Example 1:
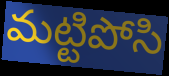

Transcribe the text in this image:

మట్టిపోసి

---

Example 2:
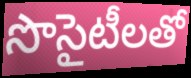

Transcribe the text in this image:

సొసైటీలతో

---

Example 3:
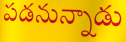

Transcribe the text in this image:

పడనున్నాడు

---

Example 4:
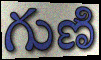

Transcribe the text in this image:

గుణి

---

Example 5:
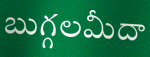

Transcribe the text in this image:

బుగ్గలమీదా